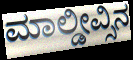
ಮಾಲ್ಡೀವ್ಸಿನ